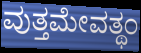
ವುತ್ತಮೇವತ್ಥಂ